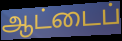
ஆட்டைப்